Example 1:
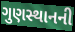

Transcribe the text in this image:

ગુણસ્થાનની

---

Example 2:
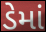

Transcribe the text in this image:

ડેમાં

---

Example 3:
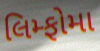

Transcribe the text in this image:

લિમ્ફોમા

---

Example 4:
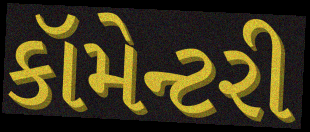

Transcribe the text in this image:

કૉમેન્ટરી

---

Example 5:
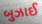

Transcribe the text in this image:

બુઝાઈ